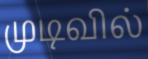
முடிவில்